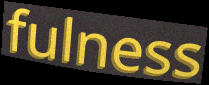
fulness